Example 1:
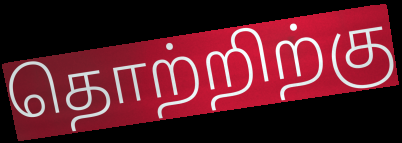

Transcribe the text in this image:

தொற்றிற்கு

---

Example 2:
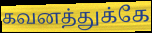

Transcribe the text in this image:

கவனத்துக்கே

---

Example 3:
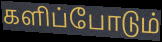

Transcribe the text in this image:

களிப்போடும்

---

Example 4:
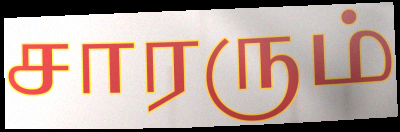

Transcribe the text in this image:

சாரரும்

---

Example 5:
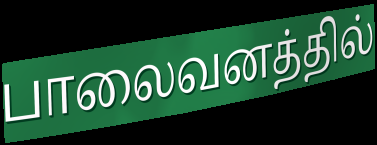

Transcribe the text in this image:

பாலைவனத்தில்